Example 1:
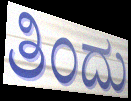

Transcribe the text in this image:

ತಿಂದು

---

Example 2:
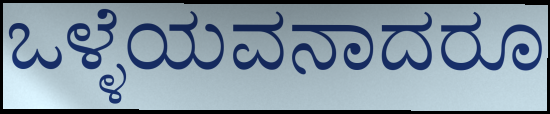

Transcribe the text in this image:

ಒಳ್ಳೆಯವನಾದರೂ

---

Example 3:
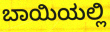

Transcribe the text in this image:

ಬಾಯಿಯಲ್ಲಿ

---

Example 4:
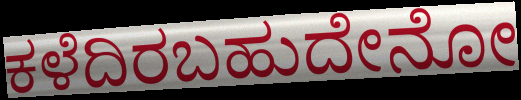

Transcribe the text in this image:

ಕಳೆದಿರಬಹುದೇನೋ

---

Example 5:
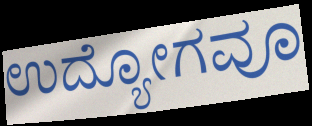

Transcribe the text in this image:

ಉದ್ಯೋಗವೂ